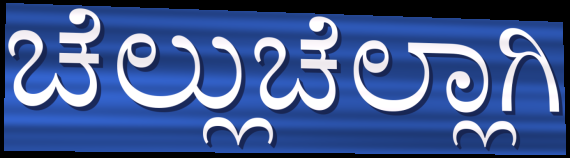
ಚೆಲ್ಲುಚೆಲ್ಲಾಗಿ